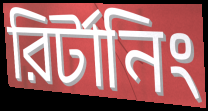
রির্টানিং